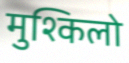
मुश्किलो